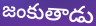
జంకుతాడు